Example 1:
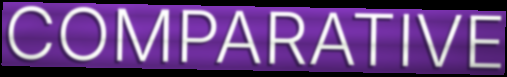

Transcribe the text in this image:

COMPARATIVE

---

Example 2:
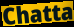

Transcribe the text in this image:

Chatta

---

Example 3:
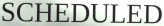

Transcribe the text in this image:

SCHEDULED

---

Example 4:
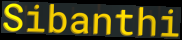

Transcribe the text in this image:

Sibanthi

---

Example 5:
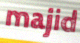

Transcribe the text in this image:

majid